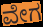
ವೇಗ